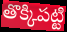
తొక్కిపట్టి